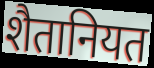
शैतानियत